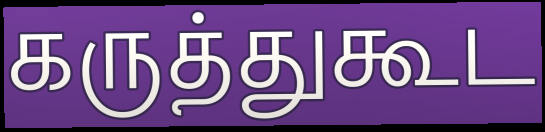
கருத்துகூட